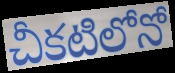
చీకటిలోనో